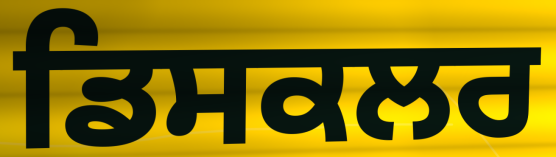
ਡਿਸਕਲਰ